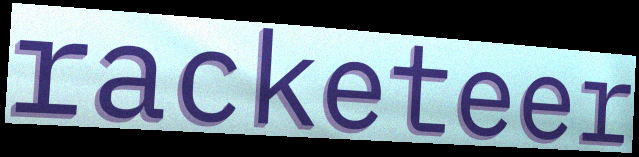
racketeer